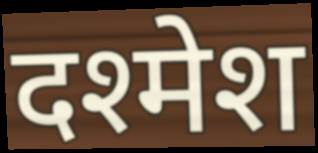
दश्मेश